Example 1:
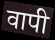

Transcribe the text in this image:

वापी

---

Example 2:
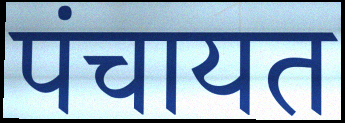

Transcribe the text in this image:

पंचायत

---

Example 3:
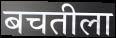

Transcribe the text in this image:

बचतीला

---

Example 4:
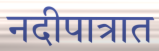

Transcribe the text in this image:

नदीपात्रात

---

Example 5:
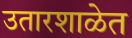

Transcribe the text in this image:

उतारशाळेत